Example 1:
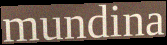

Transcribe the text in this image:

mundina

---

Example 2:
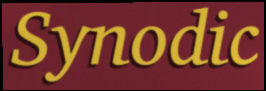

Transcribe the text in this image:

Synodic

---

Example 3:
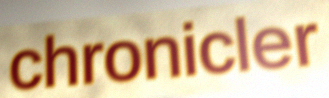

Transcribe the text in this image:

chronicler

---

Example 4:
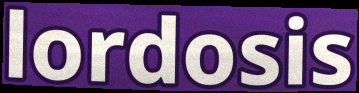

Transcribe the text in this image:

lordosis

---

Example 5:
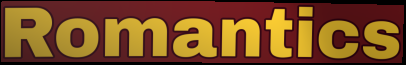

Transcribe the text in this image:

Romantics